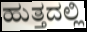
ಹುತ್ತದಲ್ಲಿ